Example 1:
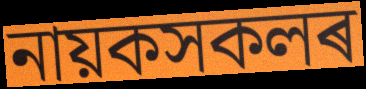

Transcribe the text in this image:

নায়কসকলৰ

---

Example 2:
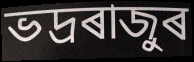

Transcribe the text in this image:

ভদ্ৰৰাজুৰ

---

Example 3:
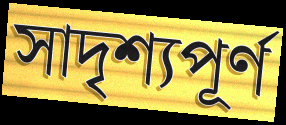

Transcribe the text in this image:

সাদৃশ্যপূৰ্ণ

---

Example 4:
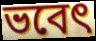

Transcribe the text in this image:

ভবেৎ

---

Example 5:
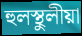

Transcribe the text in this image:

হুলস্থুলীয়া